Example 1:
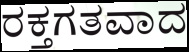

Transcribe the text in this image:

ರಕ್ತಗತವಾದ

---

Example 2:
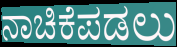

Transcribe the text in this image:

ನಾಚಿಕೆಪಡಲು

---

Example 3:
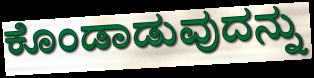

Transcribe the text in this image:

ಕೊಂಡಾಡುವುದನ್ನು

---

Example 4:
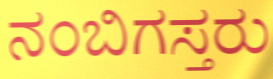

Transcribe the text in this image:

ನಂಬಿಗಸ್ತರು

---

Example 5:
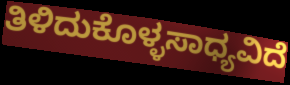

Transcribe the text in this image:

ತಿಳಿದುಕೊಳ್ಳಸಾಧ್ಯವಿದೆ